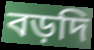
বড়দি